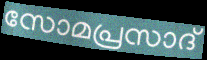
സോമപ്രസാദ്